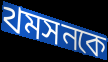
থমসনকে